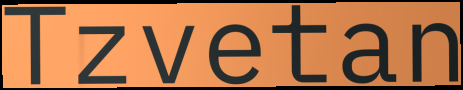
Tzvetan